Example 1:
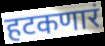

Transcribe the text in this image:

हटकणारं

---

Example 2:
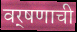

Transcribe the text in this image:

वर्षणाची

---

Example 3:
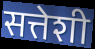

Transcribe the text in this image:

सत्तेशी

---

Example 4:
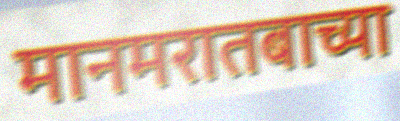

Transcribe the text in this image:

मानमरातबाच्या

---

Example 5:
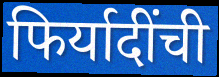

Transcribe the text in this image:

फिर्यादींची